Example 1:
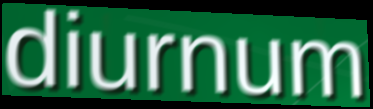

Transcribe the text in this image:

diurnum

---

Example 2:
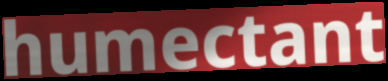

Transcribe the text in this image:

humectant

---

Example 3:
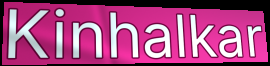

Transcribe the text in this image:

Kinhalkar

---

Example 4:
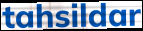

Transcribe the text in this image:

tahsildar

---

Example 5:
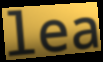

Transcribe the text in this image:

lea